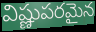
విష్ణుపరమైన